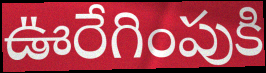
ఊరేగింపుకి